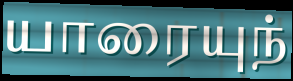
யாரையுந்